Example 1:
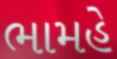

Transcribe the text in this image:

ભામહે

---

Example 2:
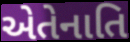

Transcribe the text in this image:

એતેનાતિ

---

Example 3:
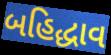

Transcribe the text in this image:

બહિદ્ધાવ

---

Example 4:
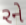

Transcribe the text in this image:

રને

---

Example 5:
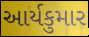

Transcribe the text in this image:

આર્યકુમાર